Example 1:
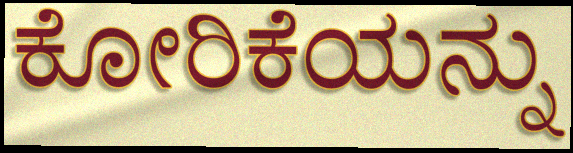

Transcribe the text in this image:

ಕೋರಿಕೆಯನ್ನು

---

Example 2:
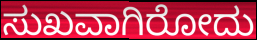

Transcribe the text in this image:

ಸುಖವಾಗಿರೋದು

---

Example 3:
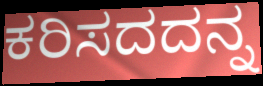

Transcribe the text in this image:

ಕರಿಸದದನ್ನ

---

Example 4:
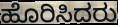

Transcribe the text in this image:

ಹೊರಿಸಿದರು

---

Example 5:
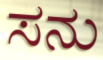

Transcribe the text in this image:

ಸನು